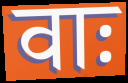
वाः